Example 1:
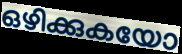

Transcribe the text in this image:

ഒഴിക്കുകയോ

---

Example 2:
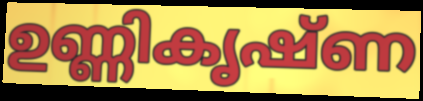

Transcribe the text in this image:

ഉണ്ണികൃഷ്ണ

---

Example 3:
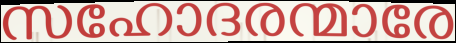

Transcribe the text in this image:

സഹോദരന്മാരേ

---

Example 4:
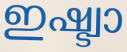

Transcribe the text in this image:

ഇഷ്ട്വാ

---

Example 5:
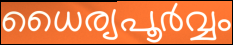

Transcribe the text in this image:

ധൈര്യപൂർവ്വം